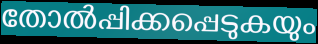
തോൽപ്പിക്കപ്പെടുകയും